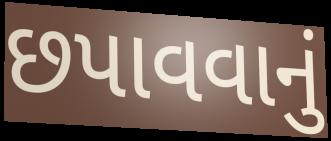
છપાવવાનું